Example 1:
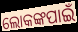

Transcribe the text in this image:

ଲୋକଙ୍କପାଇଁ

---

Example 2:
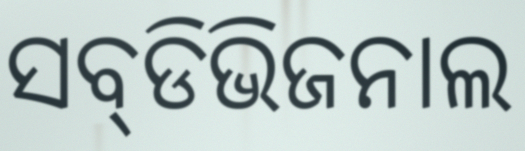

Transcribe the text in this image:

ସବ୍‌ଡିଭିଜନାଲ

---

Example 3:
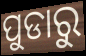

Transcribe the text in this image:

ପୁଡାରୁ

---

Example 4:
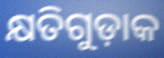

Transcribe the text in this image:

କ୍ଷତିଗୁଡ଼ାକ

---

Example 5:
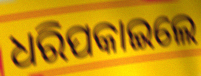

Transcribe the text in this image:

ଧରିପକାଇଲେ